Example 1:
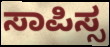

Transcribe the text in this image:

ಸಾಪಿಸ್ಸ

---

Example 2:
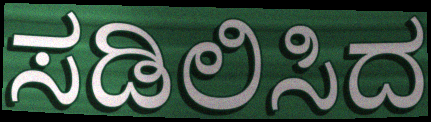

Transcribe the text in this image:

ಸಡಿಲಿಸಿದ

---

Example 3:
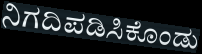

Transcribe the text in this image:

ನಿಗದಿಪಡಿಸಿಕೊಂಡು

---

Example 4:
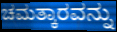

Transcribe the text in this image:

ಚಮತ್ಕಾರವನ್ನು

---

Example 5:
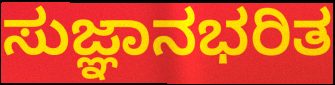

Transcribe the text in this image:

ಸುಜ್ಞಾನಭರಿತ